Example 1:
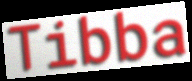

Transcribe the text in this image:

Tibba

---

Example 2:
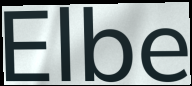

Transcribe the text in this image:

Elbe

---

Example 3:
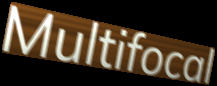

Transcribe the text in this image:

Multifocal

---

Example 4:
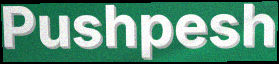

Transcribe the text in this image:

Pushpesh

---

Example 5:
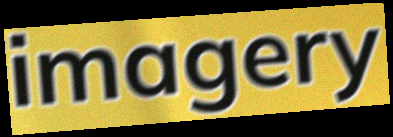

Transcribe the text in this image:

imagery